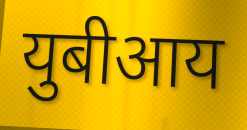
युबीआय